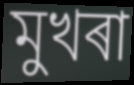
মুখৰা